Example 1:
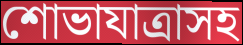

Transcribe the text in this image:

শোভাযাত্রাসহ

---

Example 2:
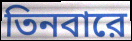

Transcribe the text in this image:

তিনবারে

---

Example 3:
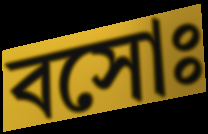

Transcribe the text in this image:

বসোঃ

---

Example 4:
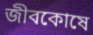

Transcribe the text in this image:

জীবকোষে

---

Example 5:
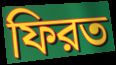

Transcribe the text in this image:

ফিরত